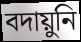
বদায়ুনি